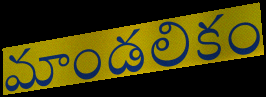
మాండలికం